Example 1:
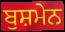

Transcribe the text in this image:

ਬੁਸ਼ਮੇਨ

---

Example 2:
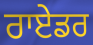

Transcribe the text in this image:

ਰਾਏਡਰ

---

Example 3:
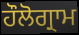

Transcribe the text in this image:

ਹੌਲੋਗ੍ਰਾਮ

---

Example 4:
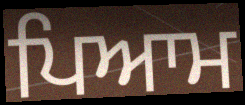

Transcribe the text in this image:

ਪਿਆਮ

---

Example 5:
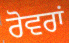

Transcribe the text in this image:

ਰੋਵਰਾਂ